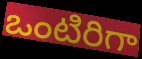
ఒంటిరిగా